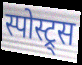
स्पोस्ट्र्स